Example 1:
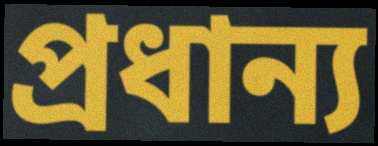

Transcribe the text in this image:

প্রধান্য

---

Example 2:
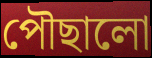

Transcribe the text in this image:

পৌছালো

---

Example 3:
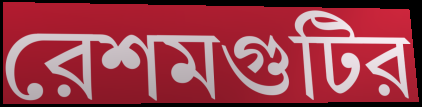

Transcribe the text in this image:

রেশমগুটির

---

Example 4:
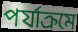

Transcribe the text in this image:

পর্যাক্রমে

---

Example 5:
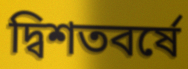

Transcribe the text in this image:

দ্বিশতবর্ষে